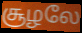
சூழலே